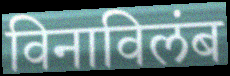
विनाविलंब